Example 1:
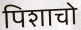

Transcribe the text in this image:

पिशाचो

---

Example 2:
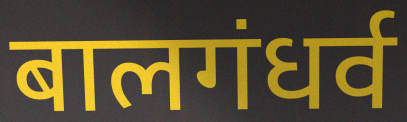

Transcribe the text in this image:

बालगंधर्व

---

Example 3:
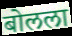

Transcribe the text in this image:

बोलला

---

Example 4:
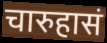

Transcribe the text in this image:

चारुहासं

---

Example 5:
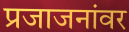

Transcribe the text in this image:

प्रजाजनांवर